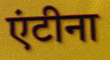
एंटीना